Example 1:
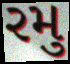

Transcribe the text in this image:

રમુ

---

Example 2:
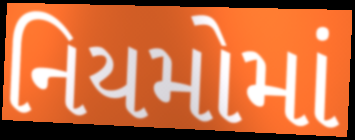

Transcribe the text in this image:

નિયમોમાં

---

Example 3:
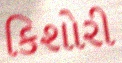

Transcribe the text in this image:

કિશોરી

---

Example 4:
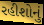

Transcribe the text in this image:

રહીશોનું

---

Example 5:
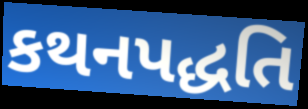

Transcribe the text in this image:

કથનપદ્ધતિ